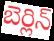
బెర్లిన్